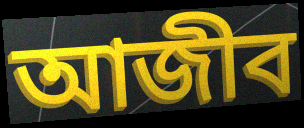
আজীব